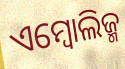
ଏମ୍ବୋଲିଜ୍ମ